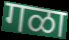
गळा